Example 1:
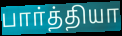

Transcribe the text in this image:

பார்த்தியா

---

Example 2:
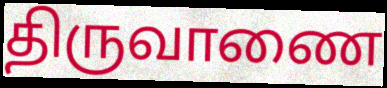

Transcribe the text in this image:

திருவாணை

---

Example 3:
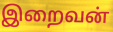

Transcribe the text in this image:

இறைவன்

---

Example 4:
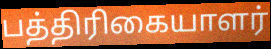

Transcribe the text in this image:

பத்திரிகையாளர்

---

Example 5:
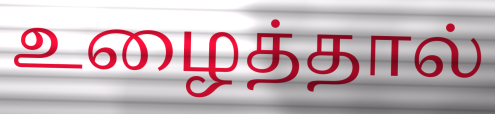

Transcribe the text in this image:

உழைத்தால்